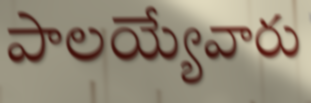
పాలయ్యేవారు